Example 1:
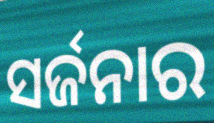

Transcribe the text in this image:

ସର୍ଜନାର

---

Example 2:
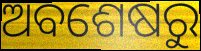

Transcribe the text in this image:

ଅବଶେଷରୁ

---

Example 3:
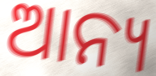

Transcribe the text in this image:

ଆନ୍ୟ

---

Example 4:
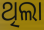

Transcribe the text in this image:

ଥିଲା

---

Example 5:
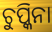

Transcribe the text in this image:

ଚୁପ୍କିନା